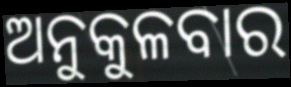
ଅନୁକୁଳବାର